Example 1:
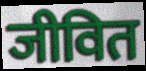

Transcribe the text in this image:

जीवित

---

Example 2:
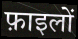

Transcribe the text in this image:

फ़ाइलों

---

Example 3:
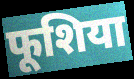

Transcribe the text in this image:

फूशिया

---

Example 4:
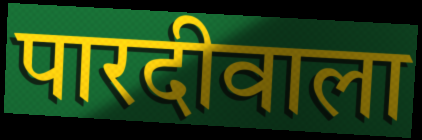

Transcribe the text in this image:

पारदीवाला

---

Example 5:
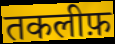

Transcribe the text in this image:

तकलीफ़